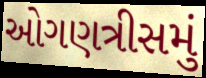
ઓગણત્રીસમું